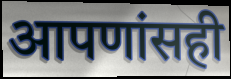
आपणांसही